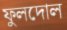
ফুলদোল